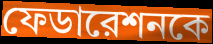
ফেডারেশনকে